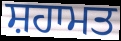
ਸ਼ਹਾਮਤ